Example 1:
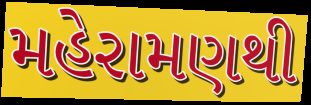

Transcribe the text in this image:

મહેરામણથી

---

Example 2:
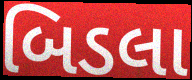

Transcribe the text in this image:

બિડલા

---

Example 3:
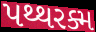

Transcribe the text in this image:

પથ્થરક્મ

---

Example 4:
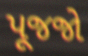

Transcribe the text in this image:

પૂજજો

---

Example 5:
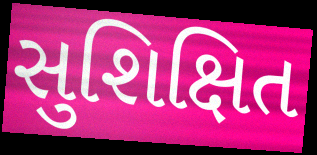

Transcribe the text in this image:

સુશિક્ષિત